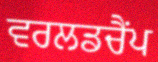
ਵਰਲਡਚੈਂਪ